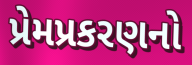
પ્રેમપ્રકરણનો